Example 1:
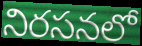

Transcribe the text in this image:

నిరసనలో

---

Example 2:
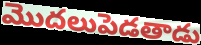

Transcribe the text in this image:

మొదలుపెడతాడు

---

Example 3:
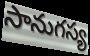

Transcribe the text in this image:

సానుగస్య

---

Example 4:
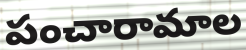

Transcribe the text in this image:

పంచారామాల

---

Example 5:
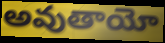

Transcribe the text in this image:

అవుతాయో